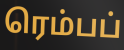
ரெம்பப்